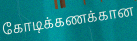
கோடிக்கணக்கான